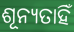
ଶୂନ୍ୟତାହିଁ